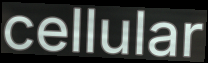
cellular